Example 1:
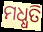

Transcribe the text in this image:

ମଧ୍ଧତି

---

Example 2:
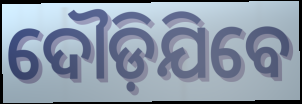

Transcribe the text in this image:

ଦୌଡ଼ିଯିବେ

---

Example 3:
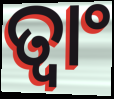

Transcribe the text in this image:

ତ୍ୱାଂ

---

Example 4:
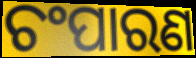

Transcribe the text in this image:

ଚଂପାରଣ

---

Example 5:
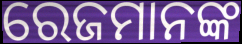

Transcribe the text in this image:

ରେଜମାନଙ୍କ